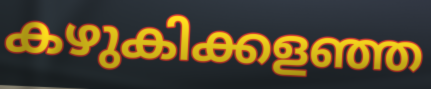
കഴുകിക്കളഞ്ഞ